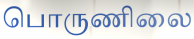
பொருணிலை